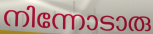
നിന്നോടാരു